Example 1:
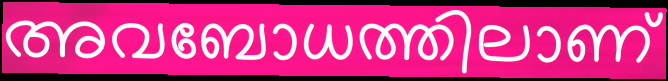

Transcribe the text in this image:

അവബോധത്തിലാണ്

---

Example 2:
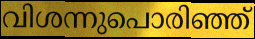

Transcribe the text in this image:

വിശന്നുപൊരിഞ്ഞ്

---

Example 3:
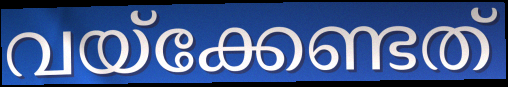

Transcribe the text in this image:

വയ്ക്കേണ്ടത്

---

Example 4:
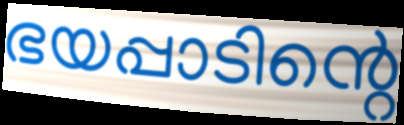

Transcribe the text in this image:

ഭയപ്പാടിന്റെ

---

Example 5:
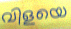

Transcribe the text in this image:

വിളയെ